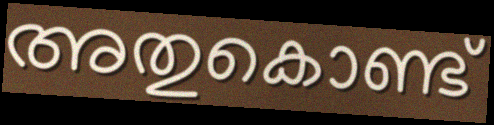
അതുകൊണ്ട്